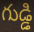
గుడ్డి